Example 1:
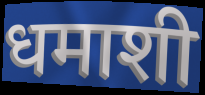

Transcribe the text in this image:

धमाशी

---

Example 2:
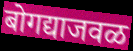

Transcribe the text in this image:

बोगद्याजवळ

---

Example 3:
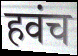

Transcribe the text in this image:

हवंच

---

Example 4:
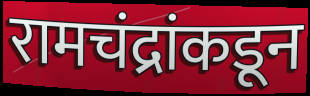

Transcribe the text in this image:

रामचंद्रांकडून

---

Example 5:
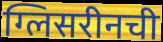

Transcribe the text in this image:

ग्लिसरीनची